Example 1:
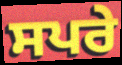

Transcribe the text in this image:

ਸਪਰੇ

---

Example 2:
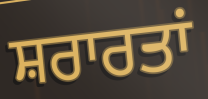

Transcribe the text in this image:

ਸ਼ਰਾਰਤਾਂ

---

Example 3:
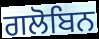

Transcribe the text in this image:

ਗਲੋਬਿਨ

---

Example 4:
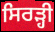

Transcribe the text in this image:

ਸਿਰੜ੍ਹੀ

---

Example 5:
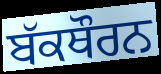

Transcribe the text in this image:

ਬੱਕਥੌਰਨ